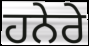
ਹਨੇਰੇ